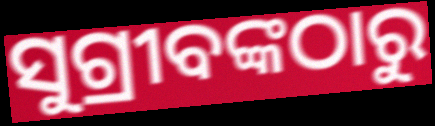
ସୁଗ୍ରୀବଙ୍କଠାରୁ